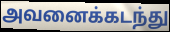
அவனைக்கடந்து